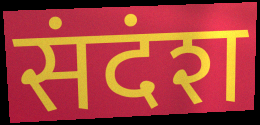
संदंश